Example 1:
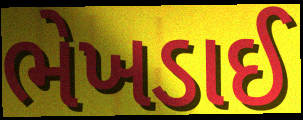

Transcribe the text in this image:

ભેખડાઈ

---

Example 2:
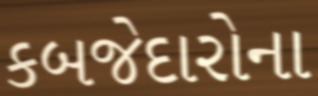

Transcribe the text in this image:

કબજેદારોના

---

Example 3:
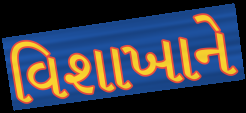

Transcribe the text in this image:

વિશાખાને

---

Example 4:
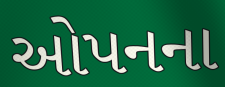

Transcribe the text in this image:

ઓપનના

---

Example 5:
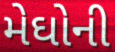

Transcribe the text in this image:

મેઘોની